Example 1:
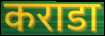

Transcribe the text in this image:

कराडा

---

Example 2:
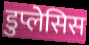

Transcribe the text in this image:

डुप्लेसिस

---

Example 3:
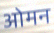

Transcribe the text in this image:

ओमन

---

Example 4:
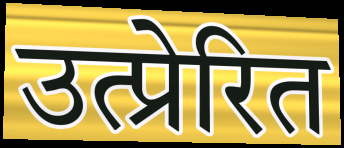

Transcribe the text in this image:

उत्प्रेरित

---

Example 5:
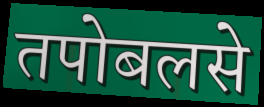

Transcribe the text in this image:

तपोबलसे